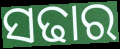
ସଢାର